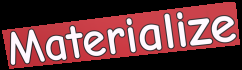
Materialize